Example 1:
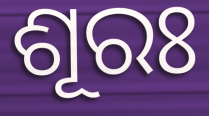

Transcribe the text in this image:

ଶୂରଃ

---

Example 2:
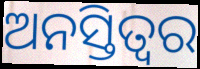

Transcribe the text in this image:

ଅନସ୍ତିତ୍ୱର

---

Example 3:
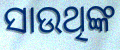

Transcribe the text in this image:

ସାଉଥିଙ୍କ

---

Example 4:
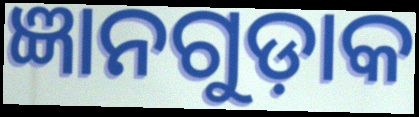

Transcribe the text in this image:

ଜ୍ଞାନଗୁଡ଼ାକ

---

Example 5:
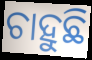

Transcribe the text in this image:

ଚାହୁଛି